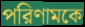
পরিণামকে